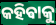
କହିଵାକୁ